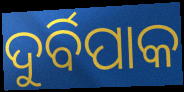
ଦୁର୍ବିପାକ